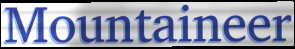
Mountaineer